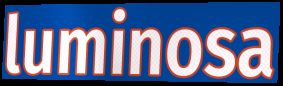
luminosa